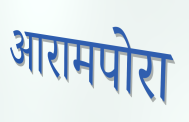
आरामपोरा